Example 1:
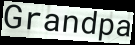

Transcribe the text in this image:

Grandpa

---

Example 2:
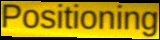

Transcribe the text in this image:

Positioning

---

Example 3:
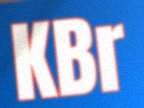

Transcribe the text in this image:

KBr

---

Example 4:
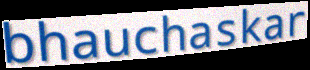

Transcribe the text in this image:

bhauchaskar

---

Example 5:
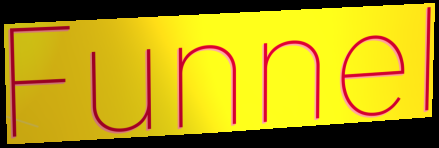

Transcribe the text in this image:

Funnel